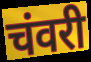
चंवरी